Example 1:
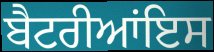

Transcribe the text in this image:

ਬੈਟਰੀਆਂਇਸ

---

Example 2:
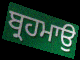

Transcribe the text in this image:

ਬ੍ਰਹਮਾਉ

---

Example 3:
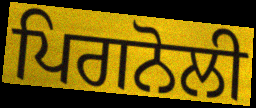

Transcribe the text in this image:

ਪਿਗਨੋਲੀ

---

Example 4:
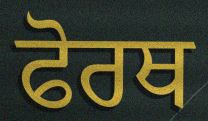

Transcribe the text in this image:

ਫੋਰਥ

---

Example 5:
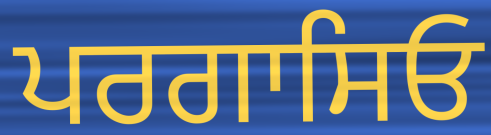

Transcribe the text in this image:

ਪਰਗਾਸਿਓ